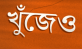
খুঁজেও